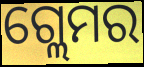
ଗ୍ଲେମର